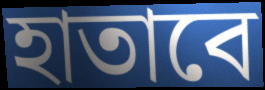
হাতাবে